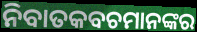
ନିବାତକବଚମାନଙ୍କର